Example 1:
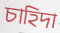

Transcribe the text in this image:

চাহিদা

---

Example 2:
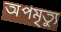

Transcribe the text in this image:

অপমৃত্যু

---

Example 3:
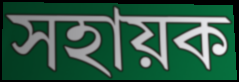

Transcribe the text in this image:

সহায়ক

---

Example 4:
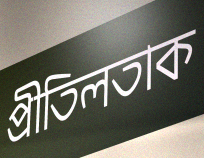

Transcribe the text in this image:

প্ৰীতিলতাক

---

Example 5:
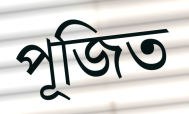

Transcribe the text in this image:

পূজিত